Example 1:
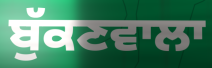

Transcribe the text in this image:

ਬੁੱਕਣਵਾਲਾ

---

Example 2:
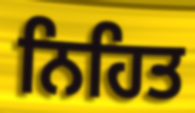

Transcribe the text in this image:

ਨਿਹਿਤ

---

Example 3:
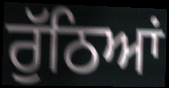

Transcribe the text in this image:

ਰੁੱਠਿਆਂ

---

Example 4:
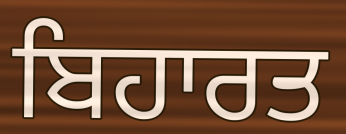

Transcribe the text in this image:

ਬਿਹਾਰਤ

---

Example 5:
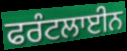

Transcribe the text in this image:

ਫਰੰਟਲਾਈਨ